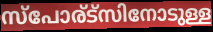
സ്പോര്ട്സിനോടുള്ള